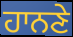
ਹਾਨਣੇ